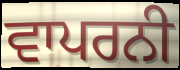
ਵਾਪਰਨੀ